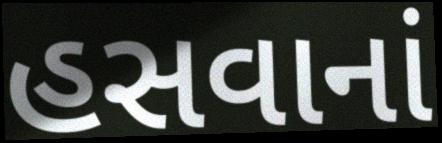
હસવાનાં